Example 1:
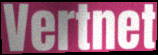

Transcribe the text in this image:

Vertnet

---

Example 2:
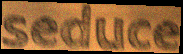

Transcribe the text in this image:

seduce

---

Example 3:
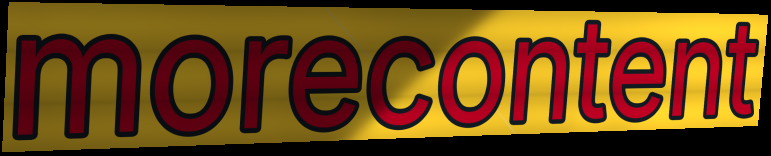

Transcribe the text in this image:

morecontent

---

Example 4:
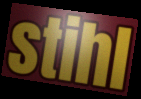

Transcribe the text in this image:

stihl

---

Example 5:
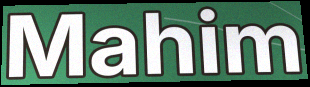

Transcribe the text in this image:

Mahim